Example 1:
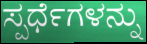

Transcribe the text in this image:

ಸ್ಪರ್ಧೆಗಳನ್ನು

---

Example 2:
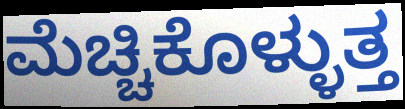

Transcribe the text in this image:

ಮೆಚ್ಚಿಕೊಳ್ಳುತ್ತ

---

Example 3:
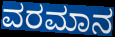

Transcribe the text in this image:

ವರಮಾನ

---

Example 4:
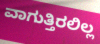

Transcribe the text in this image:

ವಾಗುತ್ತಿರಲಿಲ್ಲ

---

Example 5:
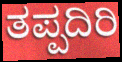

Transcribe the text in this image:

ತಪ್ಪದಿರಿ